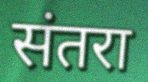
संतरा